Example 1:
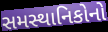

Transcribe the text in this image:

સમસ્થાનિકોનો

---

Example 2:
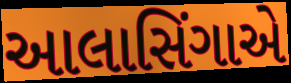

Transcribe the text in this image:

આલાસિંગાએ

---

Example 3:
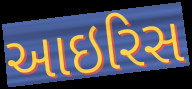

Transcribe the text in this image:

આઇરિસ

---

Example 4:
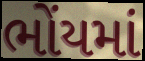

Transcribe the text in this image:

ભોંયમાં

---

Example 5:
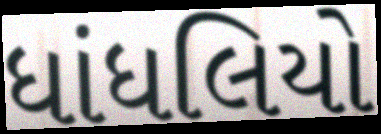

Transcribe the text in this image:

ધાંધલિયો